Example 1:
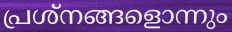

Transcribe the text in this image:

പ്രശ്നങ്ങളൊന്നും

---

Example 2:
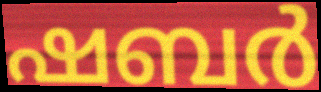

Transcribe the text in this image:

ഷബർ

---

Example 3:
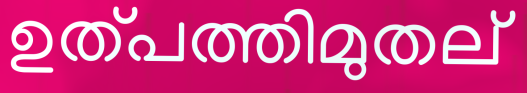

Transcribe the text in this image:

ഉത്പത്തിമുതല്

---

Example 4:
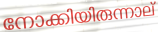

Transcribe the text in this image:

നോക്കിയിരുന്നാല്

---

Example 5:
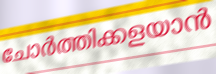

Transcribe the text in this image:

ചോർത്തിക്കളയാൻ